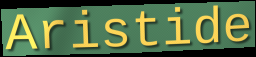
Aristide